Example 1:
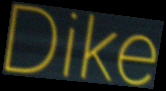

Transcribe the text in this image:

Dike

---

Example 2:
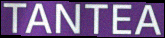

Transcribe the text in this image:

TANTEA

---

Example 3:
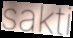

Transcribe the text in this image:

sakti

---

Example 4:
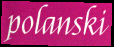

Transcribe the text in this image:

polanski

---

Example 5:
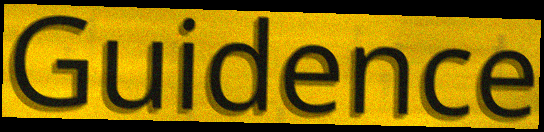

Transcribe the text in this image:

Guidence